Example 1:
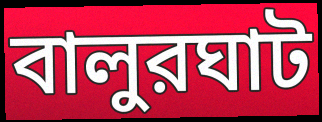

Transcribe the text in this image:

বালুরঘাট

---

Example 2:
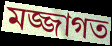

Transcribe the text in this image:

মজ্জাগত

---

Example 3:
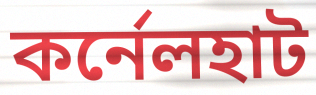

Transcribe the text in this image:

কর্নেলহাট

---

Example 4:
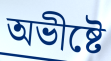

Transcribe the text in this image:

অভীষ্টে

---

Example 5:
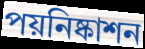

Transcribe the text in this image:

পয়নিষ্কাশন